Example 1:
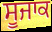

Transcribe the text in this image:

ਸੂਜਾਕ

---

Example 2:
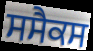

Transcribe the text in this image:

ਸਸੈਕਸ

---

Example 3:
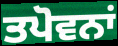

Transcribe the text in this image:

ਤਪੋਵਨਾਂ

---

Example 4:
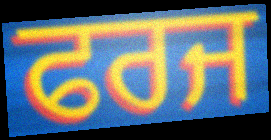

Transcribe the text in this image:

ਫਰਜ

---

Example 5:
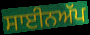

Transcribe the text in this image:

ਸਾਈਨਅੱਪ